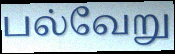
பல்வேறு